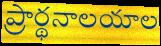
ప్రార్థనాలయాల